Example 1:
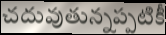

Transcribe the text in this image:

చదువుతున్నప్పటికీ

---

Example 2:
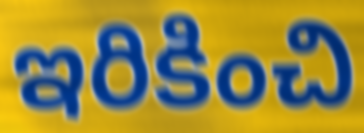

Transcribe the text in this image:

ఇరికించి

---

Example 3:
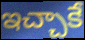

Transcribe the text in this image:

ఇచ్చాకే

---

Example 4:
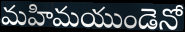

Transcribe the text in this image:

మహిమయుండెనో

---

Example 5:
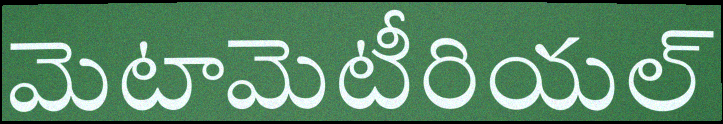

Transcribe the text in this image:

మెటామెటీరియల్